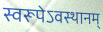
स्वरूपेऽवस्थानम्